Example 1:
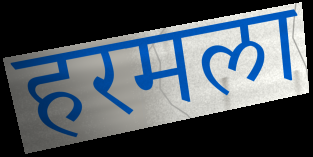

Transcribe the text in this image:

हरमला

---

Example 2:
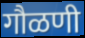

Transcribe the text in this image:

गौळणी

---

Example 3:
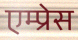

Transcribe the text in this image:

एम्प्रेस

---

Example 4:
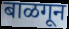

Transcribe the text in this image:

बाळगून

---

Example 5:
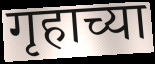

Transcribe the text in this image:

गृहाच्या